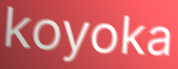
koyoka